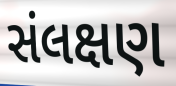
સંલક્ષણ